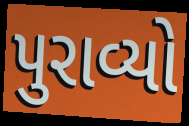
પુરાવ્યો